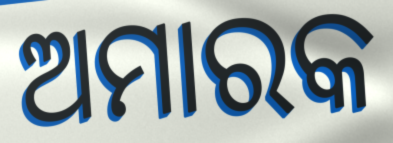
ଅମାରକ